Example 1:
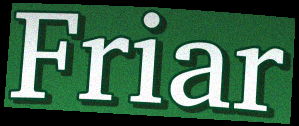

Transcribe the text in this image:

Friar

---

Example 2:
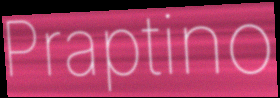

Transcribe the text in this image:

Praptino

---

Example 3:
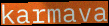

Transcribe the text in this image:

karmava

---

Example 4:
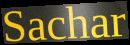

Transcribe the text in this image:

Sachar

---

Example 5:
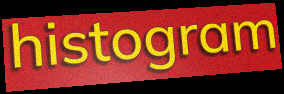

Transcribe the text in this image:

histogram